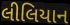
લીલિયાન